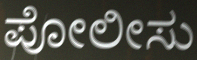
ಪೋಲೀಸು